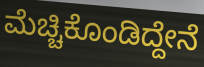
ಮೆಚ್ಚಿಕೊಂಡಿದ್ದೇನೆ